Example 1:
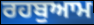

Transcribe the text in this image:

ਰਹਬੁਆਮ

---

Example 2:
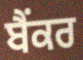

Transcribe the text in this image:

ਬੈਂਕਰ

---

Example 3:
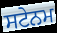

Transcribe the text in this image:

ਸਟੇਨਮ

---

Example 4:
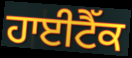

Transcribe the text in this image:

ਹਾਈਟੈੱਕ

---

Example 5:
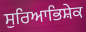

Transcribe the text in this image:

ਸੁਰਿਆਭਿਸ਼ੇਕ